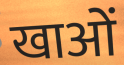
खाओं